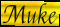
Muke